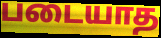
படையாத